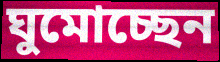
ঘুমোচ্ছেন